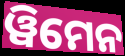
ୱିମେନ